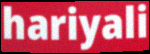
hariyali